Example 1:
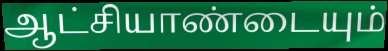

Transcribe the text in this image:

ஆட்சியாண்டையும்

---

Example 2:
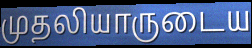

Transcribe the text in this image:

முதலியாருடைய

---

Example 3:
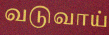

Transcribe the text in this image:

வடுவாய்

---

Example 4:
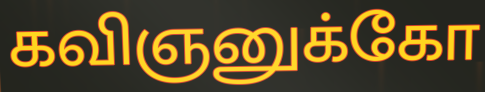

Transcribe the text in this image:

கவிஞனுக்கோ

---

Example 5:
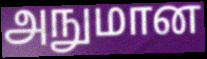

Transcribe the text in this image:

அநுமான